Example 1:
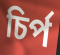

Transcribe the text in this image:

চির্প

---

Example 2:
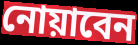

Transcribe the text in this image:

নোয়াবেন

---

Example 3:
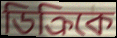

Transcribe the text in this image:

ডিক্রিকে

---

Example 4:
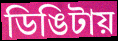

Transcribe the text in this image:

ডিঙিটায়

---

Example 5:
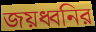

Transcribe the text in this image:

জয়ধ্বনির